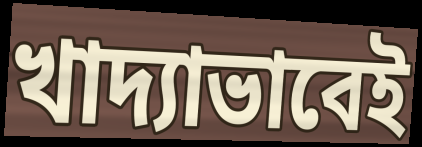
খাদ্যাভাবেই